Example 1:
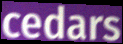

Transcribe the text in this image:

cedars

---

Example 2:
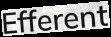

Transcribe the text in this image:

Efferent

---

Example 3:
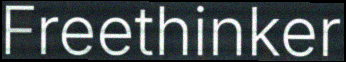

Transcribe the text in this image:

Freethinker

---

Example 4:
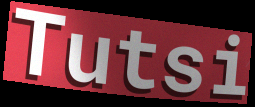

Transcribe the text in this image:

Tutsi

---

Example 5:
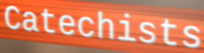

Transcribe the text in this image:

Catechists